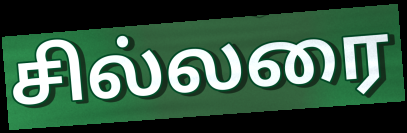
சில்லரை